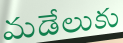
మడేలుకు